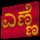
ಎಣ್ಣೆ